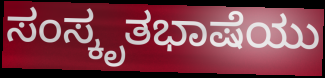
ಸಂಸ್ಕೃತಭಾಷೆಯು